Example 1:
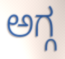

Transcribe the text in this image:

ಅಗ್ಗ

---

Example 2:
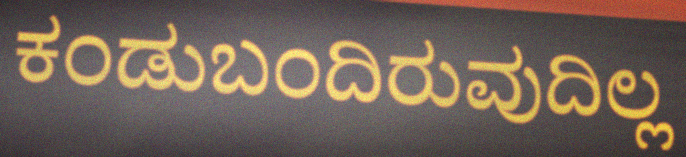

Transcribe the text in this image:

ಕಂಡುಬಂದಿರುವುದಿಲ್ಲ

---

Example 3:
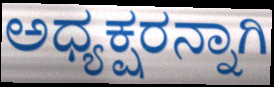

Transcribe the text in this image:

ಅಧ್ಯಕ್ಷರನ್ನಾಗಿ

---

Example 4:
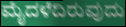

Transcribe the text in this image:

ಮೈದಳೆದಿರುವುದು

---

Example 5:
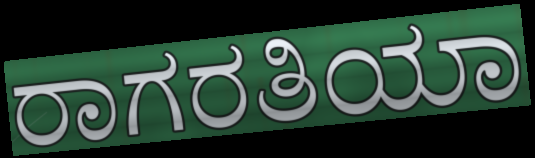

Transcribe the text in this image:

ರಾಗರತಿಯಾ